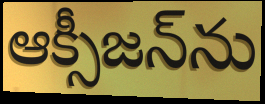
ఆక్సీజన్‌ను